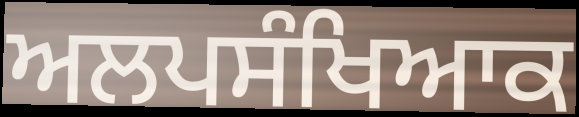
ਅਲਪਸੰਖਿਆਕ